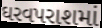
ઘરવપરાશમાં